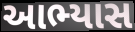
આભ્યાસ